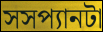
সসপ্যানটা